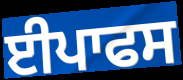
ਈਪਾਫਸ